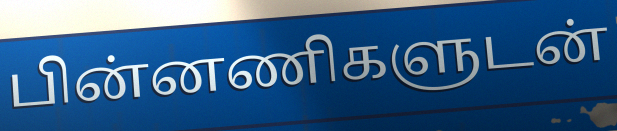
பின்னணிகளுடன்